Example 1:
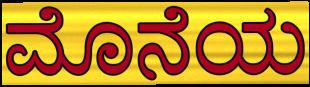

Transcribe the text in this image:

ಮೊನೆಯ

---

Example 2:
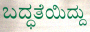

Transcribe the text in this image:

ಬದ್ಧತೆಯಿದ್ದು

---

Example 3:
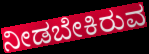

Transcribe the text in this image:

ನೀಡಬೇಕಿರುವ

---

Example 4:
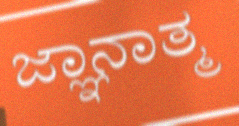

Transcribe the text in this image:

ಜ್ಞಾನಾತ್ಮ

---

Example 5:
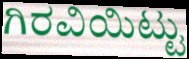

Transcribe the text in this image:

ಗಿರವಿಯಿಟ್ಟು